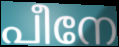
പീനേ